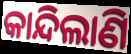
କାନ୍ଦିଲାଣି